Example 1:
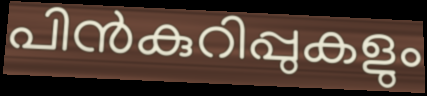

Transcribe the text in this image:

പിൻകുറിപ്പുകളും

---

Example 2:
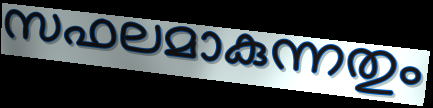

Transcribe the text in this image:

സഫലമാകുന്നതും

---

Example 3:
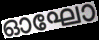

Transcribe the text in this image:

ഓഘോ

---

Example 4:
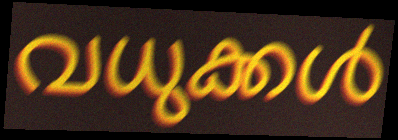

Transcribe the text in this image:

വധുക്കൾ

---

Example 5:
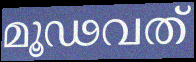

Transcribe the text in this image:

മൂഢവത്